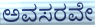
ಅವಸರವೇ